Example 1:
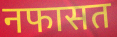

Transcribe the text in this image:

नफासत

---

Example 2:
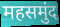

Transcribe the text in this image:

महसमुंद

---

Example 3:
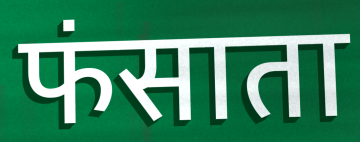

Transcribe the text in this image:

फंसाता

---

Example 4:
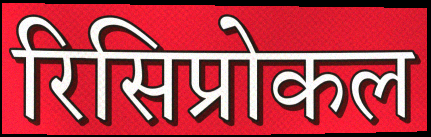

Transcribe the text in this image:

रिसिप्रोकल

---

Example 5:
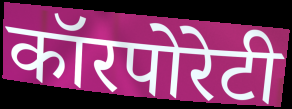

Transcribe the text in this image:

कॉरपोरेटी